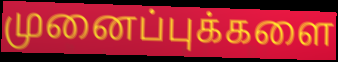
முனைப்புக்களை